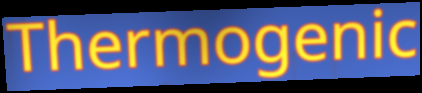
Thermogenic